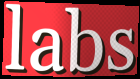
labs